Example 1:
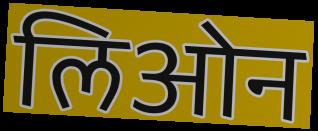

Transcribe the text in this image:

लिओन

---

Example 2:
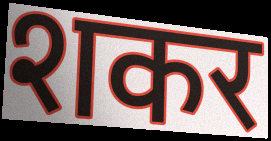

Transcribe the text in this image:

शकर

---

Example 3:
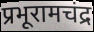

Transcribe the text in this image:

प्रभूरामचंद्र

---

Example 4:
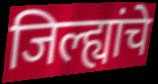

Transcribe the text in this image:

जिल्ह्यांचे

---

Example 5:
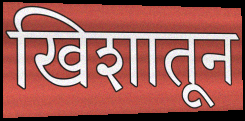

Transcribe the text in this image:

खिशातून